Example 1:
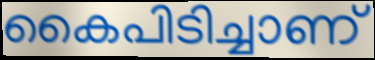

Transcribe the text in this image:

കൈപിടിച്ചാണ്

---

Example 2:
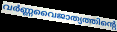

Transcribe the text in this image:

വർണ്ണവൈജാത്യത്തിന്റെ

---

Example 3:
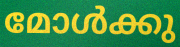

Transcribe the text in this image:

മോൾക്കു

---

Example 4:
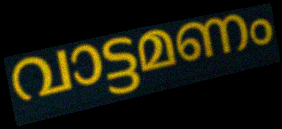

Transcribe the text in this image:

വാട്ടമണം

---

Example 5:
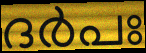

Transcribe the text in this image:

ദർപഃ